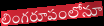
లింగరూపంలోనూ